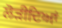
ਲੋੜੀਦਿਆਂ